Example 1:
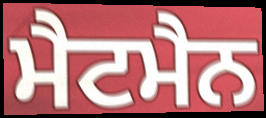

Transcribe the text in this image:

ਮੈਟਮੈਨ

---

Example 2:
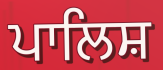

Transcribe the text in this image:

ਪਾਲਿਸ਼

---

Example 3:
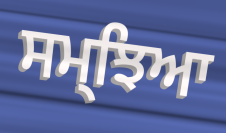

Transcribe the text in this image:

ਸਮ੍ਝਿਆ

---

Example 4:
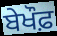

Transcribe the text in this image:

ਬੇਖੌਫ਼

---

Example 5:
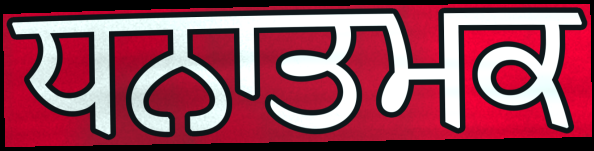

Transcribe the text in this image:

ਧਨਾਤਮਕ